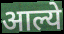
आल्ये